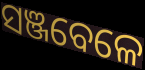
ସଞ୍ଜବେଳେ